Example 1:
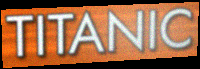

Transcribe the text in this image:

TITANIC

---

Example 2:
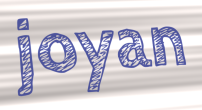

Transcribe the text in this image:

joyan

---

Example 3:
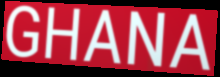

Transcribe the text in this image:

GHANA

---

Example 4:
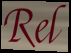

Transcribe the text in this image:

Rel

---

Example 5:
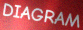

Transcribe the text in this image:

DIAGRAM